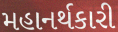
મહાનર્થકારી